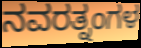
ನವರತ್ನಂಗಳ